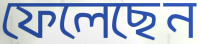
ফেলেছেন